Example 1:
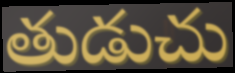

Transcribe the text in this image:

తుడుచు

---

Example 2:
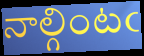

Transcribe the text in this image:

నాల్గింటఁ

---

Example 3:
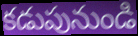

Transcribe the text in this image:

కడుపునుండి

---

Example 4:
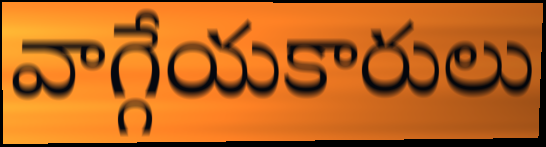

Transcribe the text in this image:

వాగ్గేయకారులు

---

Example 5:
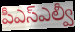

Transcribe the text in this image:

పీఎస్ఎల్వీ